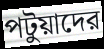
পটুয়াদের